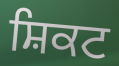
ਸ਼ਿਕਟ